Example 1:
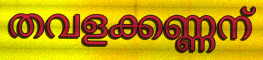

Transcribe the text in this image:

തവളക്കണ്ണന്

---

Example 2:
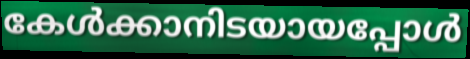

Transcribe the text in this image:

കേൾക്കാനിടയായപ്പോൾ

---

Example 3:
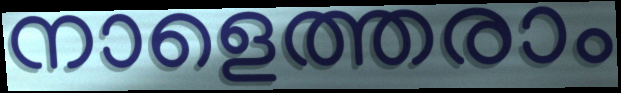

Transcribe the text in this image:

നാളെത്തരാം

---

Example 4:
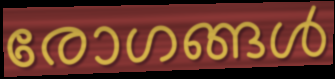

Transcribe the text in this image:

രോഗങ്ങൾ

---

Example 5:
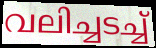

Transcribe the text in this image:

വലിച്ചടച്ച്